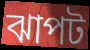
ঝাপট